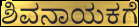
ಶಿವನಾಯಕಗೆ